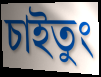
চাইতুং